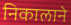
निकालाने